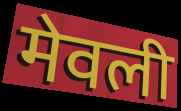
मेवली